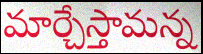
మార్చేస్తామన్న